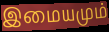
இமையமும்